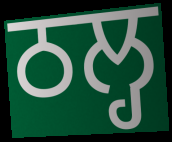
ਠਲ੍ਹ